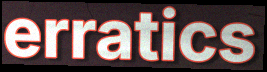
erratics